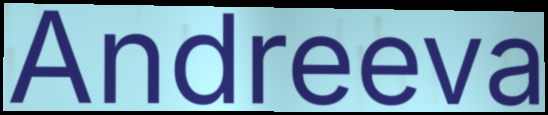
Andreeva